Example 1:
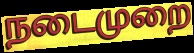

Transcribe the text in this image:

நடைமுறை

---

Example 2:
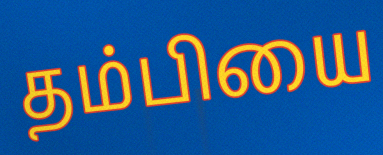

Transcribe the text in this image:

தம்பியை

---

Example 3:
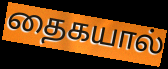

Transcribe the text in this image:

தைகயால்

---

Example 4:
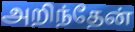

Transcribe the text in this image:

அறிந்தேன்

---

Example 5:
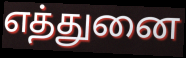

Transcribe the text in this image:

எத்துனை